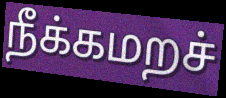
நீக்கமறச்